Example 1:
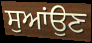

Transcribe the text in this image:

ਸੁਆਂਉਣ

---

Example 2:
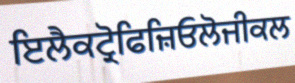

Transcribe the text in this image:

ਇਲੈਕਟ੍ਰੋਫਿਜ਼ਿਓਲੋਜੀਕਲ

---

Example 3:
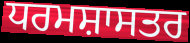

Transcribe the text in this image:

ਧਰਮਸ਼ਾਸਤਰ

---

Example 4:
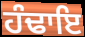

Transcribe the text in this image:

ਹੰਢਾਇ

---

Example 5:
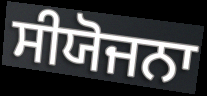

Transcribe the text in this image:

ਸੀਯੋਜਨਾ